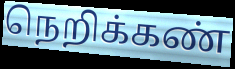
நெறிக்கண்